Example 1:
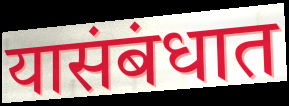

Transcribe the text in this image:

यासंबंधात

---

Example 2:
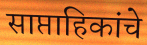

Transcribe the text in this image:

साप्ताहिकांचे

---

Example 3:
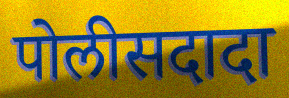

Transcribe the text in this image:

पोलीसदादा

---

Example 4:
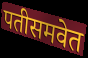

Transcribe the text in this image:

पतीसमवेत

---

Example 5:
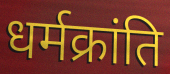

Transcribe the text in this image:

धर्मक्रांति